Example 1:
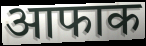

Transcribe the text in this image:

आफाक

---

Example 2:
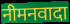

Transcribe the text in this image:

नीमनवादा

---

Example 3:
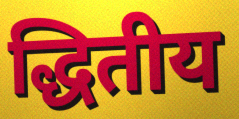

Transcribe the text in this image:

द्धितीय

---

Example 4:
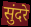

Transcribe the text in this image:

सुंदरे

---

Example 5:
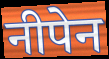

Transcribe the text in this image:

नीपेन